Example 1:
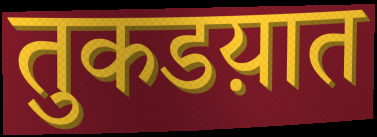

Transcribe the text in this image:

तुकडय़ात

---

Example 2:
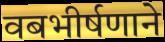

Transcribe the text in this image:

वबभीर्षणाने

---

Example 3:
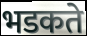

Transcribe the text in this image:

भडकते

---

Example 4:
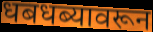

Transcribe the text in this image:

धबधब्यावरून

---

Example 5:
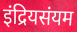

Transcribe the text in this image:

इंद्रियसंयम